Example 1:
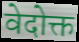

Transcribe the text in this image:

वेदोक्त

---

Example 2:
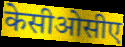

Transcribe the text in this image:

केसीओसीए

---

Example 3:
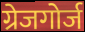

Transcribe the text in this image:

ग्रेजगोर्ज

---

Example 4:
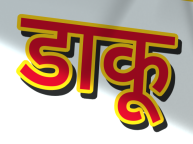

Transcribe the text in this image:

डाकू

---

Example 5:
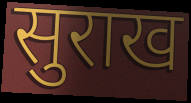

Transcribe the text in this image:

सुराख